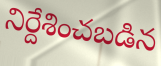
నిర్దేశించబడిన